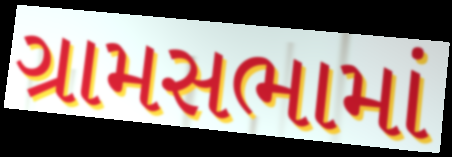
ગ્રામસભામાં